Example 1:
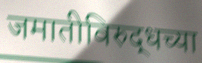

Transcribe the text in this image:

जमातीविरुद्धच्या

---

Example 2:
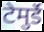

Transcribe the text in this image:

टेमुर्डे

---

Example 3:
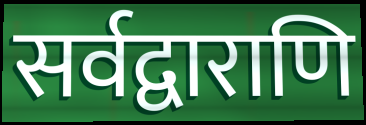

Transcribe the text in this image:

सर्वद्वाराणि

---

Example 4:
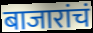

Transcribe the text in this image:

बाजारांचं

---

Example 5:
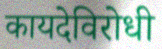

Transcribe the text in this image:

कायदेविरोधी